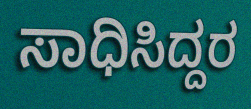
ಸಾಧಿಸಿದ್ದರ